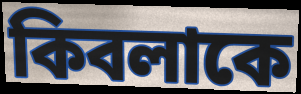
কিবলাকে